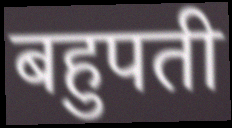
बहुपती